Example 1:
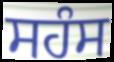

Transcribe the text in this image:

ਸਹੰਸ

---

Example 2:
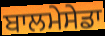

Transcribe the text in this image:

ਬਾਲਮੇਸੇਡਾ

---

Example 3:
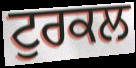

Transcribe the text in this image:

ਟੁਰਕਲ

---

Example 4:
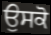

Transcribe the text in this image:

ਉਸਕੋ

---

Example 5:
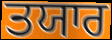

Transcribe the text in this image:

ਤਯਾਰ